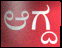
ಆಗ್ದ